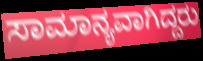
ಸಾಮಾನ್ಯವಾಗಿದ್ದರು